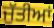
ਜੁੱਤੀਆਂ